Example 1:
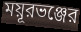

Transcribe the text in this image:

ময়ূরভঞ্জের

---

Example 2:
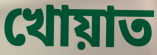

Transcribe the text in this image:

খোয়াত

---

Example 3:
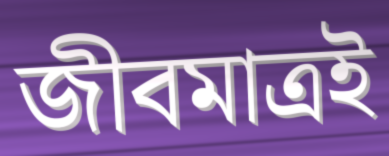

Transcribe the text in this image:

জীবমাত্রই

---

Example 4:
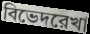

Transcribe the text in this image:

বিভেদরেখা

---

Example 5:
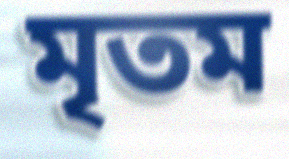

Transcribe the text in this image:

মৃতম